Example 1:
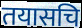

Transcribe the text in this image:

तयासचि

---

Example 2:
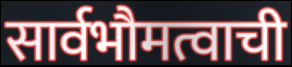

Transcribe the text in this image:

सार्वभौमत्वाची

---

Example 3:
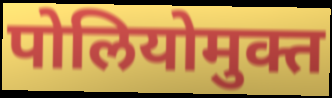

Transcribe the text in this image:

पोलियोमुक्त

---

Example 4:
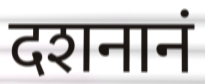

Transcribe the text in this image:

दशनानं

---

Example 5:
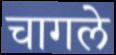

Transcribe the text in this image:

चागले